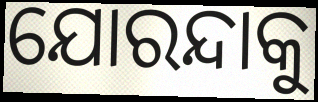
ଯୋରନ୍ଦାକୁ